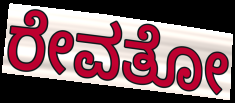
ರೇವತೋ